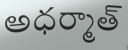
అధర్మాత్